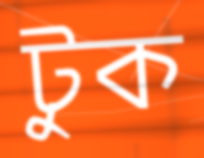
টুক